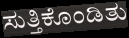
ಸುತ್ತಿಕೊಂಡಿತು